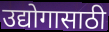
उद्योगासाठी